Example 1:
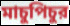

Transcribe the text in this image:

মাচুপিচুর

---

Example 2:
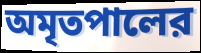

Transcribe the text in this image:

অমৃতপালের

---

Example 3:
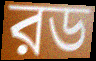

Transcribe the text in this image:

রড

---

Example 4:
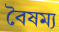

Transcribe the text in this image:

বৈষম্য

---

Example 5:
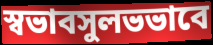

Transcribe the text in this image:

স্বভাবসুলভভাবে